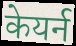
केयर्न